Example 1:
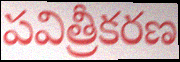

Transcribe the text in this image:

పవిత్రీకరణ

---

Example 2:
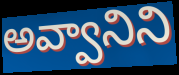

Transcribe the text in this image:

అవ్వానిని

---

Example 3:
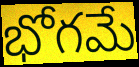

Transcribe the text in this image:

భోగమే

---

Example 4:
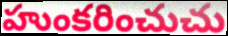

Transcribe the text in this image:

హుంకరించుచు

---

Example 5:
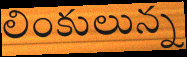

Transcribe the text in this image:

లింకులున్న